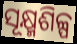
ସୂକ୍ଷ୍ମଶିଳ୍ପ